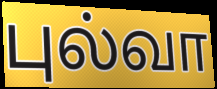
புல்வா